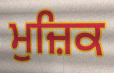
ਮੁਜ਼ਿਕ